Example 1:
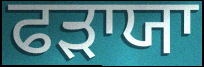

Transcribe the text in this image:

ਫੜਾਯਾ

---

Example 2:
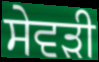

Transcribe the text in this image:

ਸੇਵੜੀ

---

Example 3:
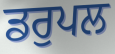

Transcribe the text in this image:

ਡਰੁਪਲ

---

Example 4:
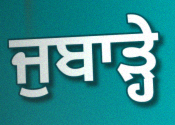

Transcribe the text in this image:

ਜੁਬਾੜ੍ਹੇ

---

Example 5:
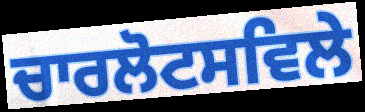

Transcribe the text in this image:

ਚਾਰਲੋਟਸਵਿਲੇ